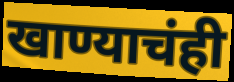
खाण्याचंही